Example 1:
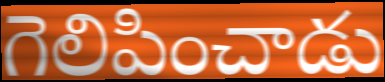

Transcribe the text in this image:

గెలిపించాడు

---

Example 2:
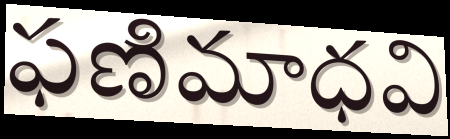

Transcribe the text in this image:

ఫణిమాధవి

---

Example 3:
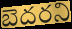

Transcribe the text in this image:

బెదరని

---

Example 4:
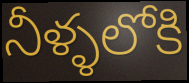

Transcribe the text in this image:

నీళ్ళలోకి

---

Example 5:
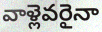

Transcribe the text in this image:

వాళ్లెవరైనా